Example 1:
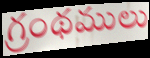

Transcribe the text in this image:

గ్రంథములు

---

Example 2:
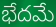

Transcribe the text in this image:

భేదమే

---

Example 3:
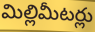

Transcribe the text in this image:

మిల్లిమీటర్లు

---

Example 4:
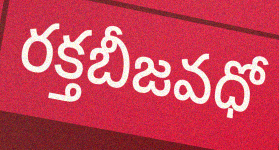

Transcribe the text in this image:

రక్తబీజవధో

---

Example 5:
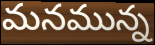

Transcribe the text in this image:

మనమున్న